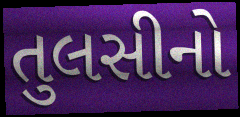
તુલસીનો